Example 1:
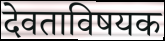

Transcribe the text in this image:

देवताविषयक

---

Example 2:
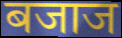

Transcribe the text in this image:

बजाज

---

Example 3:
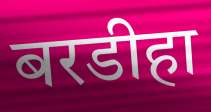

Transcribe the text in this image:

बरडीहा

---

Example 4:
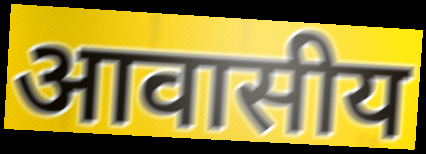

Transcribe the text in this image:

आवासीय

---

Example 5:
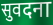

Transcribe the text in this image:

सुवदना